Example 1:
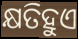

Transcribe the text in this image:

କ୍ଷତିହୁଏ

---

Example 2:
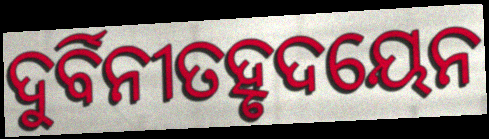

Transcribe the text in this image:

ଦୁର୍ବିନୀତହୃଦୟେନ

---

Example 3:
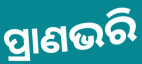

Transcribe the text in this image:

ପ୍ରାଣଭରି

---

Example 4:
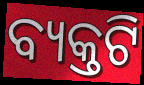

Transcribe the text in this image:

ବ୍ୟକ୍ତଟି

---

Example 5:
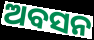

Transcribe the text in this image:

ଅବସନ